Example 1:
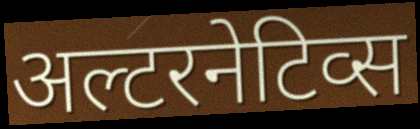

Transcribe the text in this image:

अल्टरनेटिव्स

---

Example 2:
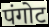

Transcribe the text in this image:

पंगोट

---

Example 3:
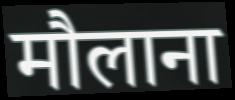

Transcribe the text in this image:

मौलाना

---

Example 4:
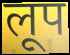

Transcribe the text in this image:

लूप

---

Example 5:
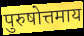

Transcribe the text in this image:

पुरुषोत्तमाय